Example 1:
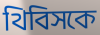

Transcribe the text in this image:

থিবিসকে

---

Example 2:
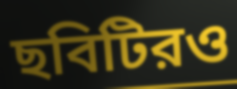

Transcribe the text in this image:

ছবিটিরও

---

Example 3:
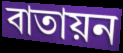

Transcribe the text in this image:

বাতায়ন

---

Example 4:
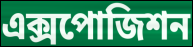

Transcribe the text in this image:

এক্সপোজিশন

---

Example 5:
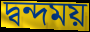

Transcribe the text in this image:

দ্বন্দময়